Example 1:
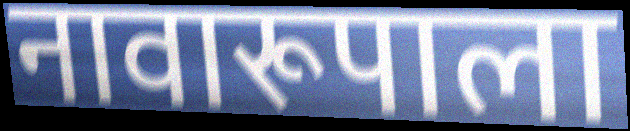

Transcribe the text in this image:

नावारूपाला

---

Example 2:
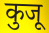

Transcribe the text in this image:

कुजू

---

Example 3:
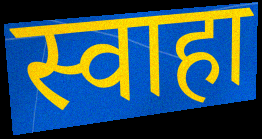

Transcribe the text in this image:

स्वाहा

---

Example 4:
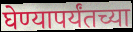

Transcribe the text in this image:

घेण्यापर्यंतच्या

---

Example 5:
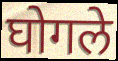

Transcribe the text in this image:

घोगले